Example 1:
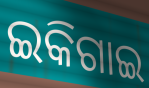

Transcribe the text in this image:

ଇକିଗାଇ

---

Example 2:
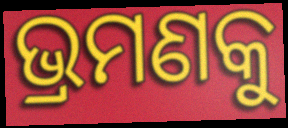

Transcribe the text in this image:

ଭ୍ରମଣକୁ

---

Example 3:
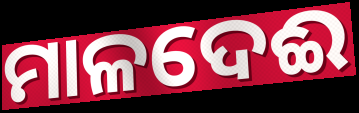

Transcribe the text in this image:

ମାଳଦେଈ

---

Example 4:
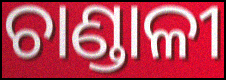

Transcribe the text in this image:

ଚାଣ୍ଡାଳୀ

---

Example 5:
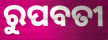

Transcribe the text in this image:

ରୁପବତୀ